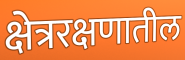
क्षेत्ररक्षणातील